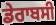
ਡੇਰਾਬਸੀ